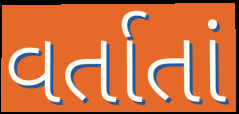
વર્તાતાં